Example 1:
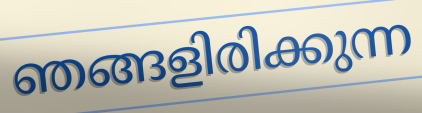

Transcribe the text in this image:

ഞങ്ങളിരിക്കുന്ന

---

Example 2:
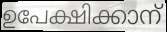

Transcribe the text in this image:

ഉപേക്ഷിക്കാന്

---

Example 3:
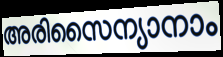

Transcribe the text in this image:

അരിസൈന്യാനാം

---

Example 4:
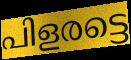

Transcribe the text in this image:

പിളരട്ടെ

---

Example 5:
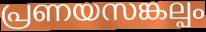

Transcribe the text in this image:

പ്രണയസങ്കല്പം